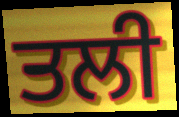
ਤਲੀ